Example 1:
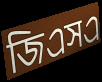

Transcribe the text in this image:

জিএসএ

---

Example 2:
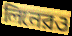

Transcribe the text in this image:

লিনেরও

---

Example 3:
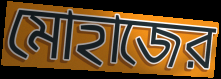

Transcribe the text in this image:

মোহাজের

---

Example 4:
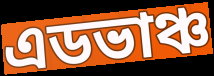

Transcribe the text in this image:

এডভাঞ্চ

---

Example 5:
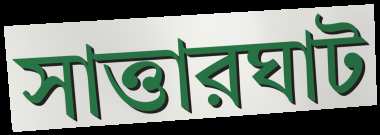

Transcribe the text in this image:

সাত্তারঘাট